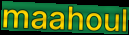
maahoul